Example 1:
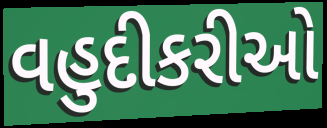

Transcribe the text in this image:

વહુદીકરીઓ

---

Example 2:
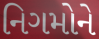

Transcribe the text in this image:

નિગમોને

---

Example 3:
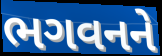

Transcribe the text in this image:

ભગવનને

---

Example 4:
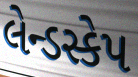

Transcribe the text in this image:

લેન્ડસ્કેપ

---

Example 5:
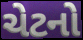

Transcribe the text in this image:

ચેટનો